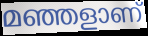
മഞ്ഞളാണ്